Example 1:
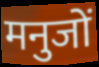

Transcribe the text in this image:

मनुजों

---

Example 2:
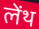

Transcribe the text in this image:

लेंथ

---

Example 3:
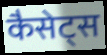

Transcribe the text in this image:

कैसेट्स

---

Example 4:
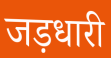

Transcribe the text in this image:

जड़धारी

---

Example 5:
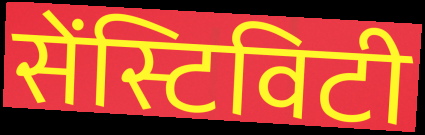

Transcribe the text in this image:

सेंस्टिविटी